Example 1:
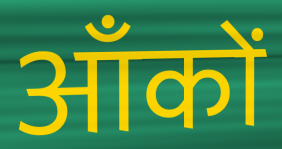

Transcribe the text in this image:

आँकों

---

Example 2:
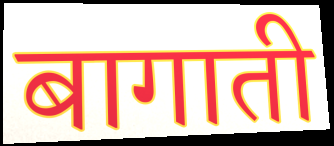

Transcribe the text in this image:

बागाती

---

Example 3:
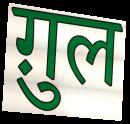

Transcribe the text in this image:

ग़ुल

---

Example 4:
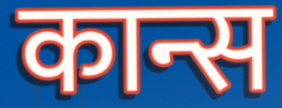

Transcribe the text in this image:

कान्‍स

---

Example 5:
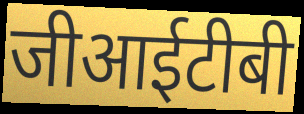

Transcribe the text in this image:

जीआईटीबी